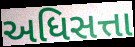
અધિસત્તા